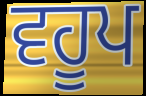
ਵਹੂਪ